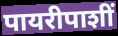
पायरीपाशीं